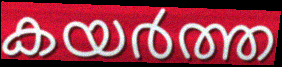
കയർത്ത